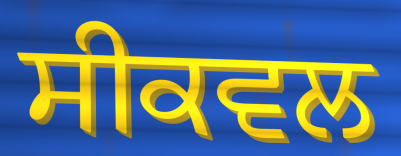
ਸੀਕਵਲ